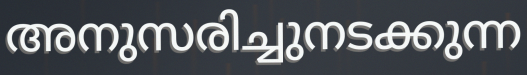
അനുസരിച്ചുനടക്കുന്ന